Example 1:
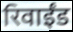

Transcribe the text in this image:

रिवाईंड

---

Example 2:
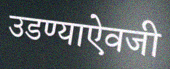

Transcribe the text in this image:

उडण्याऐवजी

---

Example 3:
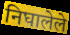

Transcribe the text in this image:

निघालेले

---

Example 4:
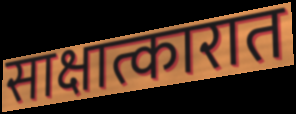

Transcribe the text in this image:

साक्षात्कारात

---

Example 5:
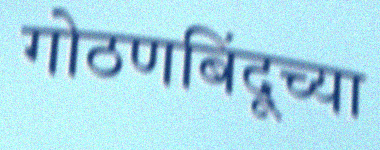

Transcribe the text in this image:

गोठणबिंदूच्या